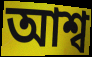
আশ্ব